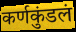
कर्णकुंडलं